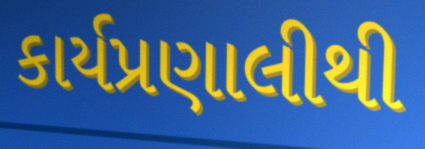
કાર્યપ્રણાલીથી